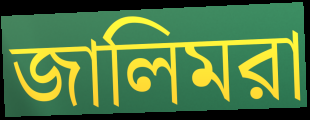
জালিমরা